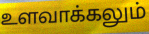
உளவாக்கலும்